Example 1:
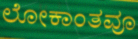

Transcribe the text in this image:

ಲೋಕಾಂತವೂ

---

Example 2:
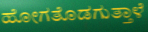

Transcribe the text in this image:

ಹೋಗತೊಡಗುತ್ತಾಳೆ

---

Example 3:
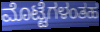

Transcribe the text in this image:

ಮೊಟ್ಟೆಗಳಂತಹ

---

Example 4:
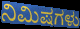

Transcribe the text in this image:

ನಿಮಿಷಗಳು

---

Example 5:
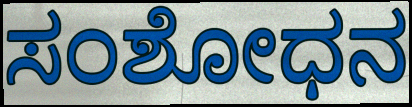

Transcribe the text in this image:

ಸಂಶೋಧನ